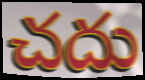
చదు